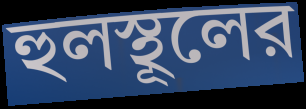
হুলস্থূলের